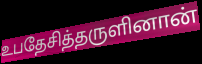
உபதேசித்தருளினான்